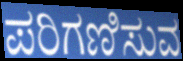
ಪರಿಗಣಿಸುವ